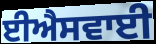
ਈਐਸਵਾਈ